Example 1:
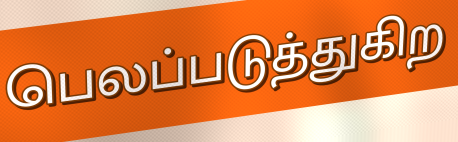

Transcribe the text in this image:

பெலப்படுத்துகிற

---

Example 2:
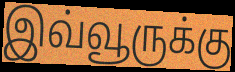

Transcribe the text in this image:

இவ்வூருக்கு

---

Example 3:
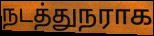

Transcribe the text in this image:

நடத்துநராக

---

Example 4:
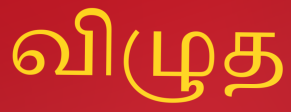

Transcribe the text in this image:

விழுத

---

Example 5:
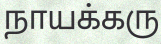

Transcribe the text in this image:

நாயக்கரு